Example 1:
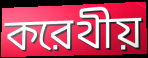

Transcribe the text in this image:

করেথীয়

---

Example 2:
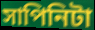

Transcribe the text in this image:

সাপিনিটা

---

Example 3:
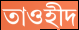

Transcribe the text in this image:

তাওহীদ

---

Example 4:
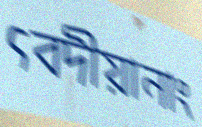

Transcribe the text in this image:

ৎবদীয়ানাং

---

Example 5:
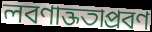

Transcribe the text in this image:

লবণাক্ততাপ্রবণ